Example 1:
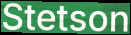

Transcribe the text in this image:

Stetson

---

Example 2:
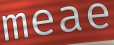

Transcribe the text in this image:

meae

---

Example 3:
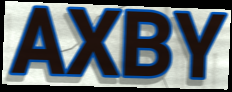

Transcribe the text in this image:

AXBY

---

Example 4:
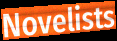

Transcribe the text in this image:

Novelists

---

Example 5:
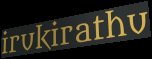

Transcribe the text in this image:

irukirathu